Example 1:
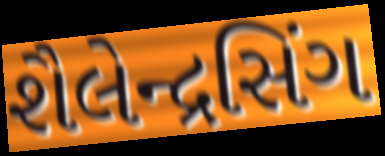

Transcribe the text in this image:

શૈલેન્દ્રસિંગ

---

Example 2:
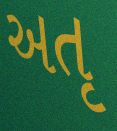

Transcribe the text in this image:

અતૃ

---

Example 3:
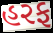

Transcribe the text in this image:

હરફ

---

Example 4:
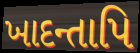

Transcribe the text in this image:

ખાદન્તાપિ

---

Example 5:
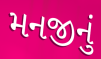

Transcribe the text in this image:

મનજીનું